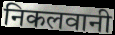
निकलवानी